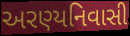
અરણ્યનિવાસી